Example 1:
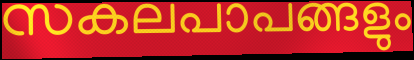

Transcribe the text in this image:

സകലപാപങ്ങളും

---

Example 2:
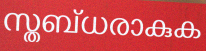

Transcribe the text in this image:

സ്തബ്ധരാകുക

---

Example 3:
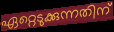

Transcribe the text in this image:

ഏറ്റെടുക്കുന്നതിന്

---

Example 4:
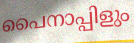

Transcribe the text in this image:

പൈനാപ്പിളും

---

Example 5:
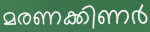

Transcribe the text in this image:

മരണക്കിണർ